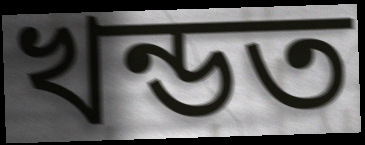
খন্ডত